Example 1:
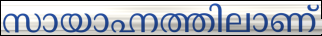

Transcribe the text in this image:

സായാഹ്നത്തിലാണ്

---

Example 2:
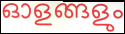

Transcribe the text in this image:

ഓളങ്ങളും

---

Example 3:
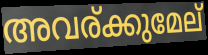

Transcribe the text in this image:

അവര്ക്കുമേല്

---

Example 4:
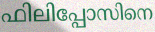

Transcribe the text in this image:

ഫിലിപ്പോസിനെ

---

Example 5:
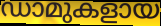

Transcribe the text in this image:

ഡാമുകളായ